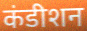
कंडीशन